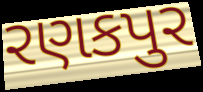
રણકપુર